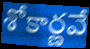
శోకార్ణవే